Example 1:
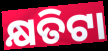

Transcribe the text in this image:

କ୍ଷତିଟା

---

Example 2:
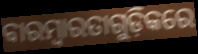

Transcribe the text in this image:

ବାରମ୍ବାରତାଗୁଡ଼ିକରେ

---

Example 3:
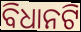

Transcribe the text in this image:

ବିଧାନଟି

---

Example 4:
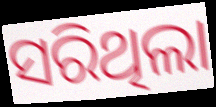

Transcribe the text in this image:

ସରିଥିଲା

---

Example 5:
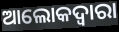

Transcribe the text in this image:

ଆଲୋକଦ୍ୱାରା